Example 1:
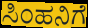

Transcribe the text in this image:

ಸಿಂಹನಿಗೆ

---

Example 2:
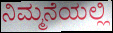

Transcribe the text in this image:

ನಿಮ್ಮನೆಯಲ್ಲಿ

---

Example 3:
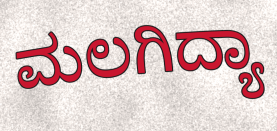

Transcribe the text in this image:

ಮಲಗಿದ್ಯಾ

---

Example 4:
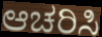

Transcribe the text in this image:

ಆಚರಿಸಿ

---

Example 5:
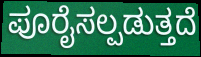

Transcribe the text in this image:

ಪೂರೈಸಲ್ಪಡುತ್ತದೆ